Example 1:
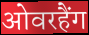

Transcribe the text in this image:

ओवरहैंग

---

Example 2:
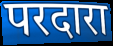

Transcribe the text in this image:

परदारा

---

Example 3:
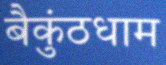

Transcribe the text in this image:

बैकुंठधाम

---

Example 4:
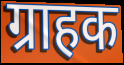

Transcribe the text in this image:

ग्राहक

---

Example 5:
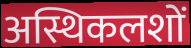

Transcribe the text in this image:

अस्थिकलशों